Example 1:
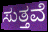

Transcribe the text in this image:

ಸುತ್ತವೆ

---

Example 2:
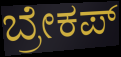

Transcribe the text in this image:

ಬ್ರೇಕಪ್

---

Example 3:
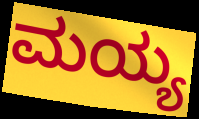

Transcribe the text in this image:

ಮಯ್ಯ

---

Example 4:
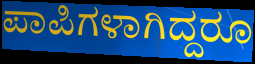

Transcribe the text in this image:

ಪಾಪಿಗಳಾಗಿದ್ದರೂ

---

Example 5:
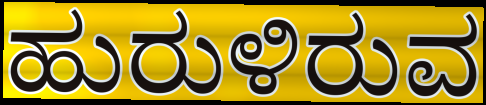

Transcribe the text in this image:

ಹುರುಳಿರುವ